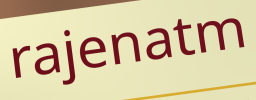
rajenatm